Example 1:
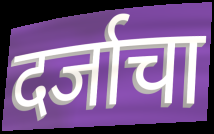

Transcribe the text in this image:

दर्जाचा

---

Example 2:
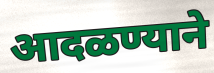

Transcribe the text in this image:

आदळण्याने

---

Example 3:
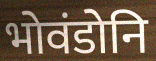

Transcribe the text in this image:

भोवंडोनि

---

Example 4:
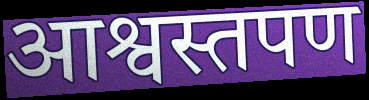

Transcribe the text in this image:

आश्वस्तपण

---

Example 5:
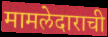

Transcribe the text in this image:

मामलेदाराची